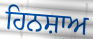
ਹਿਨਸ਼ਾਅ